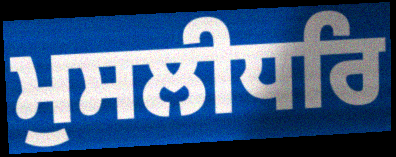
ਮੁਸਲੀਧਰਿ